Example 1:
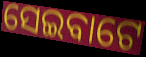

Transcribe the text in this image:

ସେଇବାଟେ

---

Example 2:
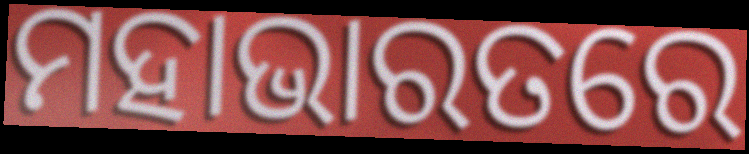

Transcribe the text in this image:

ମହାଭାରତରେ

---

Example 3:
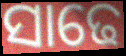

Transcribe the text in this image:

ସାଢେ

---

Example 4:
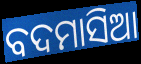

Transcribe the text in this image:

ବଦମାସିଆ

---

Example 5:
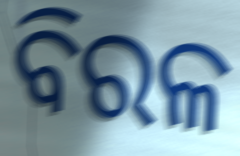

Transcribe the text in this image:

ବିରଳ